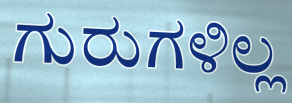
ಗುರುಗಳಿಲ್ಲ